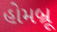
હોમબ્રૂ